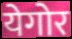
येगोर